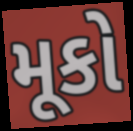
મૂકો